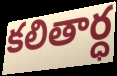
కలితార్ధ